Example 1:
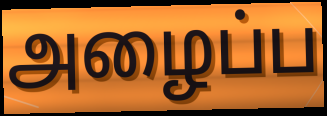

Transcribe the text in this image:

அழைப்ப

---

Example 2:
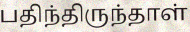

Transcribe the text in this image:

பதிந்திருந்தாள்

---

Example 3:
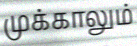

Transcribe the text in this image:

முக்காலும்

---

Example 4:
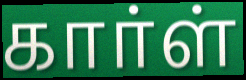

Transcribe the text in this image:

கார்ள்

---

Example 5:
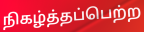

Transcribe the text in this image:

நிகழ்த்தப்பெற்ற